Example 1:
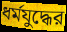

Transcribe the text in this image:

ধর্মযুদ্ধের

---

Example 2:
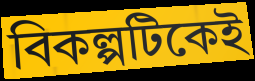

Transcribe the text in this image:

বিকল্পটিকেই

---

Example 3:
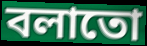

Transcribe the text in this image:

বলাতো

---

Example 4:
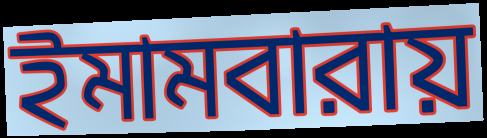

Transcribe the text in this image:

ইমামবারায়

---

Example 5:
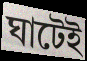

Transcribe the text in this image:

ঘাটেই